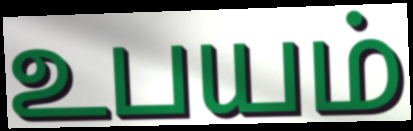
உபயம்